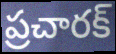
ప్రచారక్